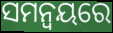
ସମନ୍ବୟରେ